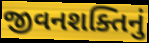
જીવનશક્તિનું